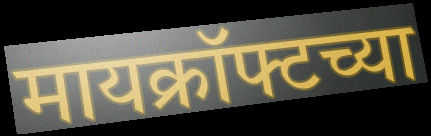
मायक्रॉफ्टच्या